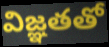
విజ్ఞతతో